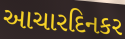
આચારદિનકર